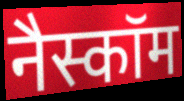
नैस्कॉम